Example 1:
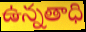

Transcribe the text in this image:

ఉన్నతాధి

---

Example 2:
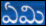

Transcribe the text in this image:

ఏమి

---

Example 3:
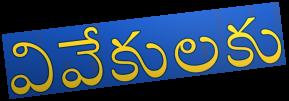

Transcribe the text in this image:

వివేకులకు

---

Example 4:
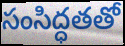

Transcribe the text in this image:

సంసిద్ధతతో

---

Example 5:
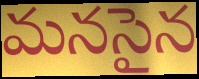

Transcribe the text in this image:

మనసైన